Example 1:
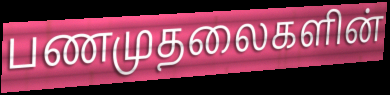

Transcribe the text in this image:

பணமுதலைகளின்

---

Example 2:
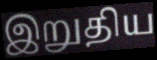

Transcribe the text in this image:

இறுதிய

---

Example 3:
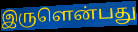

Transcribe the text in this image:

இருளென்பது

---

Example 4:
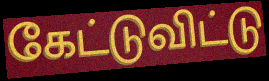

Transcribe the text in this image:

கேட்டுவிட்டு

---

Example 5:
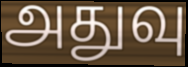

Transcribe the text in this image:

அதுவு